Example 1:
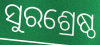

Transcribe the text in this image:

ସୁରଶ୍ରେଷ୍ଠ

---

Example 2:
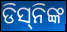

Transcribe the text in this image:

ଡିସ୍‌ନିଙ୍କ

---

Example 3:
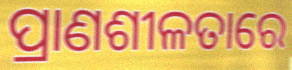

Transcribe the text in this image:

ପ୍ରାଣଶୀଳତାରେ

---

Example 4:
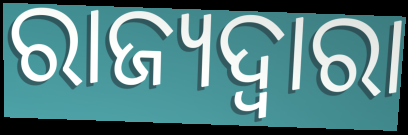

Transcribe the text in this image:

ରାଜ୍ୟଦ୍ୱାରା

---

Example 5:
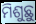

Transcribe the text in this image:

ମିଶୁଛୁ